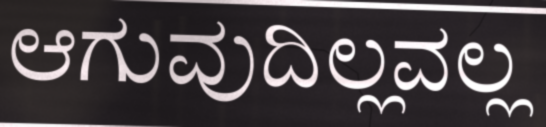
ಆಗುವುದಿಲ್ಲವಲ್ಲ